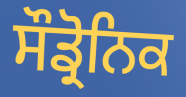
ਸੌਡ੍ਰੋਨਿਕ